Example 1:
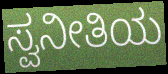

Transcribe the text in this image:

ಸ್ವನೀತಿಯ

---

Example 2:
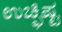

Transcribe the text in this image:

ಉಚ್ಫಿಷ್ಟ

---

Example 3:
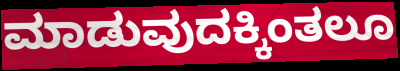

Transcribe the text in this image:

ಮಾಡುವುದಕ್ಕಿಂತಲೂ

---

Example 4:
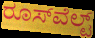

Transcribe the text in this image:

ರೂಸ್‍ವೆಲ್ಟ್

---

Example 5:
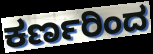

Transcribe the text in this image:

ಕರ್ಣರಿಂದ